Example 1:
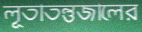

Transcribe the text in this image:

লূতাতন্তুজালের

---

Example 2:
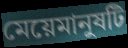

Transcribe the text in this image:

মেয়েমানুষটি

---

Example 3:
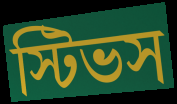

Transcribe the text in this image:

স্টিভস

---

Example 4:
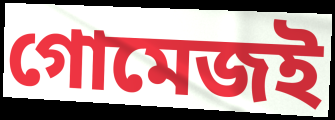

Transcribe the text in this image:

গোমেজই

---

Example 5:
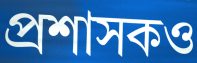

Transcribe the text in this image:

প্রশাসকও